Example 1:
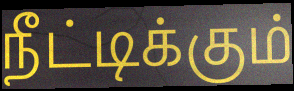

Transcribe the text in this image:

நீட்டிக்கும்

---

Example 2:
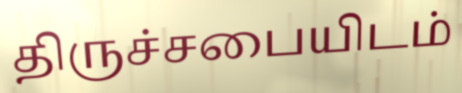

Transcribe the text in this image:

திருச்சபையிடம்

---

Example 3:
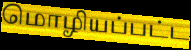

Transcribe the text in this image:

மொழியப்பட்ட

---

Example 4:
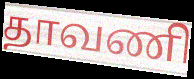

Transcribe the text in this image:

தாவணி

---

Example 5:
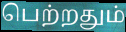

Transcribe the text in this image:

பெற்றதும்